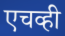
एचव्ही